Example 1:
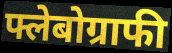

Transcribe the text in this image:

फ्लेबोग्राफी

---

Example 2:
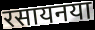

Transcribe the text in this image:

रसायनया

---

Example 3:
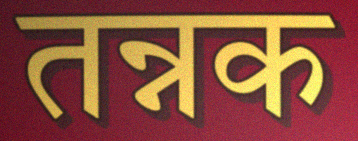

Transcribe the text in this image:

तन्नक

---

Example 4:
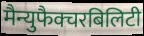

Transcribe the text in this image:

मैन्युफैक्चरबिलिटी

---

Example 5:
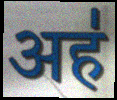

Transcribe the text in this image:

अह॑